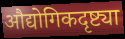
औद्योगिकदृष्ट्या